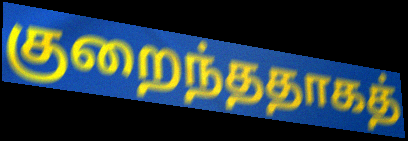
குறைந்ததாகத்